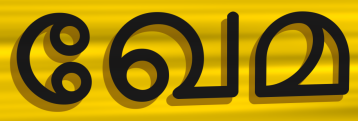
ഖേമ